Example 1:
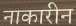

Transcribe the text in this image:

नाकारीन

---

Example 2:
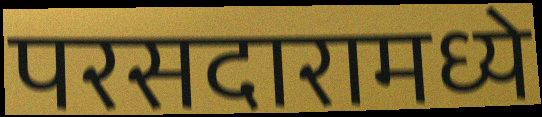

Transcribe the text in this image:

परसदारामध्ये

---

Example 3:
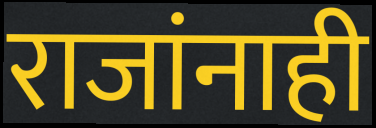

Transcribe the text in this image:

राजांनाही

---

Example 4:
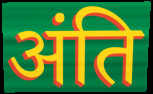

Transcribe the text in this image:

अंति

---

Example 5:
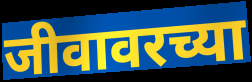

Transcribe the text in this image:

जीवावरच्या